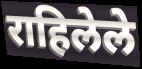
राहिलेले